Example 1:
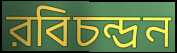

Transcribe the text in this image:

রবিচন্দ্রন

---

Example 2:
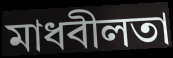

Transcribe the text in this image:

মাধবীলতা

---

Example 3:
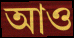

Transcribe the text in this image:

আও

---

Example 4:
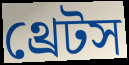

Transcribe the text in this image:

থ্রেটস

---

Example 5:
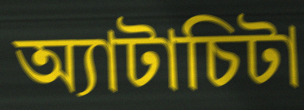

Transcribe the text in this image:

অ্যাটাচিটা